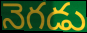
నెగడు